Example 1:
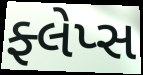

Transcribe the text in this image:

ફ્લેપ્સ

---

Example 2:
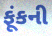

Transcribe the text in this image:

ફૂંકની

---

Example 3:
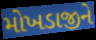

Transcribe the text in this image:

મોખડાજીને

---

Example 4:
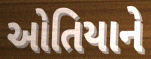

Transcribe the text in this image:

ઓતિયાને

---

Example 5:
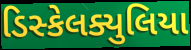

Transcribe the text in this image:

ડિસ્કેલક્યુલિયા